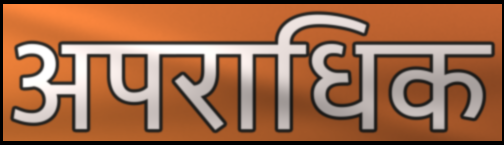
अपराधिक